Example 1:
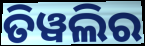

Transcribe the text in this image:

ତିୱଲିର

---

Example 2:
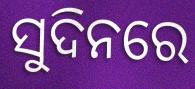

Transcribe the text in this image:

ସୁଦିନରେ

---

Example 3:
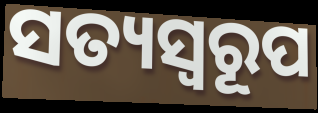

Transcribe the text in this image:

ସତ୍ୟସ୍ୱରୂପ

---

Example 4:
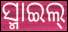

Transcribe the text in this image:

ସ୍ମାଇଲ୍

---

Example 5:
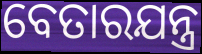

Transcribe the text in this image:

ବେତାରଯନ୍ତ୍ର